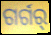
ଗର୍ଗର୍